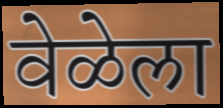
वेळेला